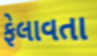
ફેલાવતા